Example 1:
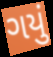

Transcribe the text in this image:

ગયું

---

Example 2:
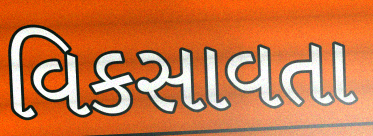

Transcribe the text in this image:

વિકસાવતા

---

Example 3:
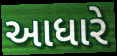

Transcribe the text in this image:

આધારે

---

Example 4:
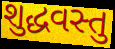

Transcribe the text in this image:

શુદ્ધવસ્તુ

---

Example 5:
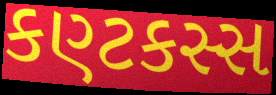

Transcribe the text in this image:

કણ્ટકસ્સ